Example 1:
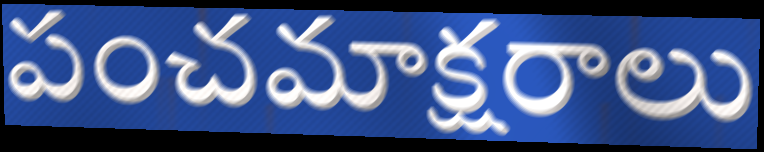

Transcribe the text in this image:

పంచమాక్షరాలు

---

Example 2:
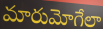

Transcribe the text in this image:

మారుమోగేలా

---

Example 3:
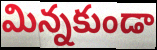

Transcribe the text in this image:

మిన్నకుండా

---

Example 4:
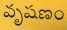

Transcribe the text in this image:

వృషణం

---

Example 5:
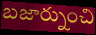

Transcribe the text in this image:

బజార్నుంచి